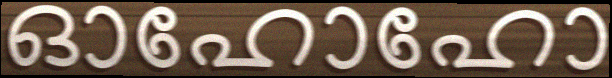
ഓഹോഹോ